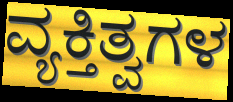
ವ್ಯಕ್ತಿತ್ವಗಳ